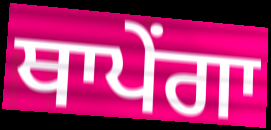
ਥਾਪੇਂਗਾ